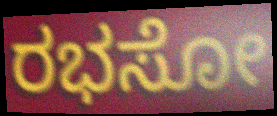
ರಭಸೋ